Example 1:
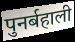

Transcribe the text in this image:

पुनर्बहाली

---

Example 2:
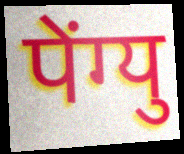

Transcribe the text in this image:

पेंग्यु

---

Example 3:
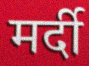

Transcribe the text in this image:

मर्दी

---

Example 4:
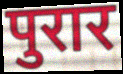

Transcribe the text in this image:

पुरार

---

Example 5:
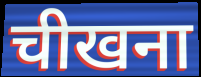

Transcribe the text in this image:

चीखना